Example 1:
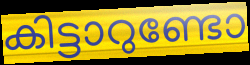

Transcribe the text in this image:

കിട്ടാറുണ്ടോ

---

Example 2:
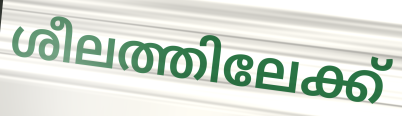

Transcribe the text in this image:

ശീലത്തിലേക്ക്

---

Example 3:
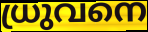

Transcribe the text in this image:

ധ്രുവനെ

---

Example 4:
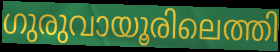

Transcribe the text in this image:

ഗുരുവായൂരിലെത്തി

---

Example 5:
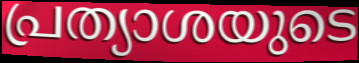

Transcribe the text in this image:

പ്രത്യാശയുടെ